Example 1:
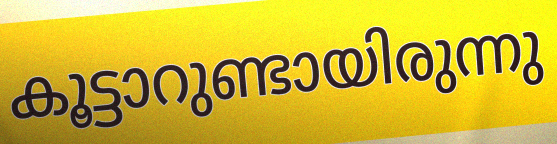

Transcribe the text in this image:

കൂട്ടാറുണ്ടായിരുന്നു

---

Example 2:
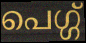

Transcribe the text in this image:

പെഗ്ഗ്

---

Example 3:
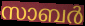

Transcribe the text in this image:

സാബർ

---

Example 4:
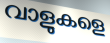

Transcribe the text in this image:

വാളുകളെ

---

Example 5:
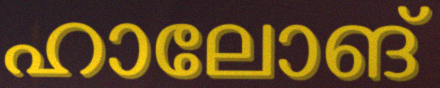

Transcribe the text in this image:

ഹാലോങ്